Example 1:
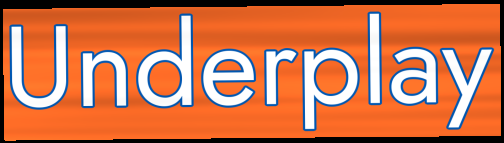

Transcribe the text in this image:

Underplay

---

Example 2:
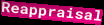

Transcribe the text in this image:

Reappraisal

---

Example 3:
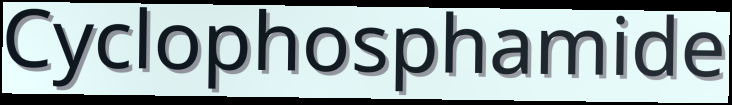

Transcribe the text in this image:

Cyclophosphamide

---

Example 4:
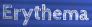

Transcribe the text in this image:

Erythema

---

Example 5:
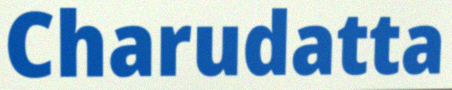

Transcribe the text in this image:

Charudatta